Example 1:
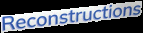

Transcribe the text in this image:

Reconstructions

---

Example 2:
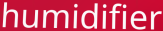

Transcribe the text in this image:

humidifier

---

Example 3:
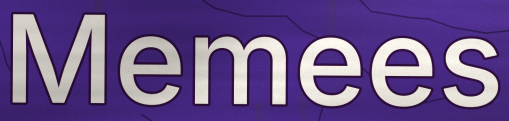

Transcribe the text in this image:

Memees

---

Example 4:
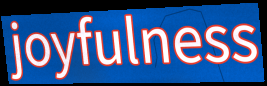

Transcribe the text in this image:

joyfulness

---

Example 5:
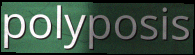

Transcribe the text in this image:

polyposis